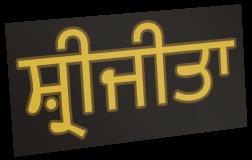
ਸ਼੍ਰੀਜੀਤਾ